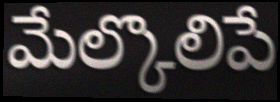
మేల్కొలిపే